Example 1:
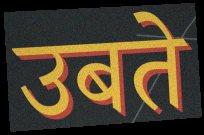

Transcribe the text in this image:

उबते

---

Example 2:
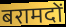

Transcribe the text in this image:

बरामदों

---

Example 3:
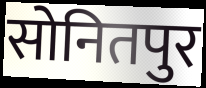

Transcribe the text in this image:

सोनितपुर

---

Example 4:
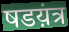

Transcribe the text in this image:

षडय़ंत्र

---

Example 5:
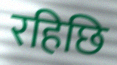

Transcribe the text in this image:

रहिछि